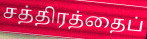
சத்திரத்தைப்